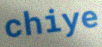
chiye